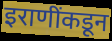
इराणींकडून